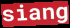
siang